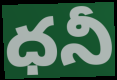
ధనీ